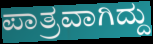
ಪಾತ್ರವಾಗಿದ್ದು